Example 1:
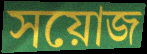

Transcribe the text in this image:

সয়োজ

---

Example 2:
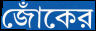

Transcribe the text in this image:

জোঁকের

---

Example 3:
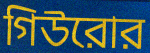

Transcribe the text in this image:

গিউরোর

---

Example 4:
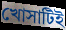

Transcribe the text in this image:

খোসাটিই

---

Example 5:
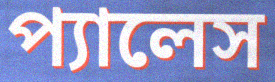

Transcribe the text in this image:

প্যালেস